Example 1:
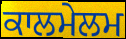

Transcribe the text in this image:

ਕਾਲਮੇਲਮ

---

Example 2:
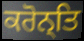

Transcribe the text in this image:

ਕਰੋਨ੍ਤਿ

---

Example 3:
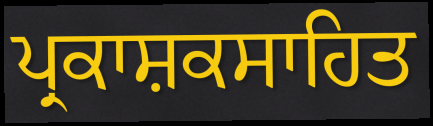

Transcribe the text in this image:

ਪ੍ਰਕਾਸ਼ਕਸਾਹਿਤ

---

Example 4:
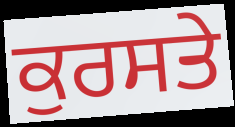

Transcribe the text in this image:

ਕੁਰਸਤੇ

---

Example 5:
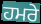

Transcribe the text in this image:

ਹਮਰੇ